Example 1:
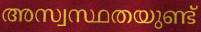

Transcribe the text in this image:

അസ്വസ്ഥതയുണ്ട്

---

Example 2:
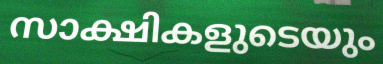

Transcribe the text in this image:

സാക്ഷികളുടെയും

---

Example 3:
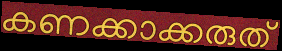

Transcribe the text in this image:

കണക്കാക്കരുത്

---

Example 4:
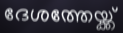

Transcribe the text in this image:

ദേശത്തേയ്ക്ക്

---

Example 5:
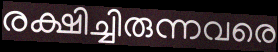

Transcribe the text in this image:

രക്ഷിച്ചിരുന്നവരെ